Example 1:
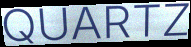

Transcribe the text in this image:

QUARTZ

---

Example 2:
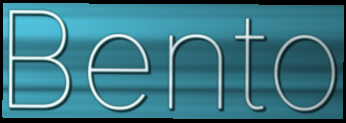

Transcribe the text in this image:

Bento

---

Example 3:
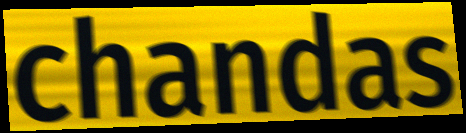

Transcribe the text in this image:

chandas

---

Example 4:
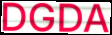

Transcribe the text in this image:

DGDA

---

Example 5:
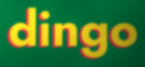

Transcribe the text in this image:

dingo